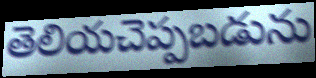
తెలియచెప్పబడును